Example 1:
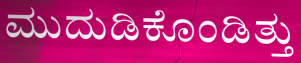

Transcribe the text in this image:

ಮುದುಡಿಕೊಂಡಿತ್ತು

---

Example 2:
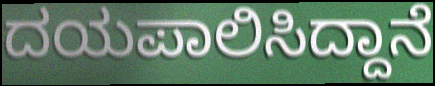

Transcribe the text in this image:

ದಯಪಾಲಿಸಿದ್ದಾನೆ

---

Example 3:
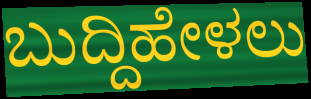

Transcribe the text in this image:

ಬುದ್ದಿಹೇಳಲು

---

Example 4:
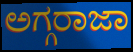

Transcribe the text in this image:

ಅಗ್ಗರಾಜಾ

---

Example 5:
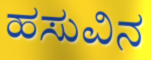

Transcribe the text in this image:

ಹಸುವಿನ